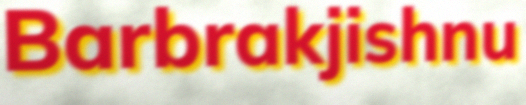
Barbrakjishnu